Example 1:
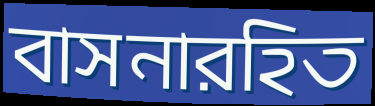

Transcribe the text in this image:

বাসনারহিত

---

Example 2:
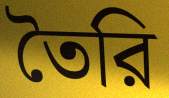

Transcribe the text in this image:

তৈরি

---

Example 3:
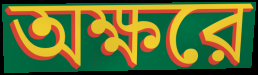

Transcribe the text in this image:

অক্ষরে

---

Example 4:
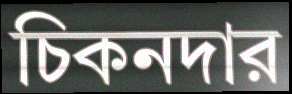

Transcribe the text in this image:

চিকনদার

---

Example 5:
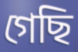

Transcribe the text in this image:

গেছি